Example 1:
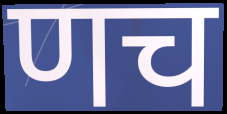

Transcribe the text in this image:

णच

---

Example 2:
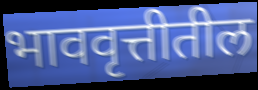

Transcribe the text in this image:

भाववृत्तीतील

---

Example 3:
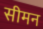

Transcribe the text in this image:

सीमन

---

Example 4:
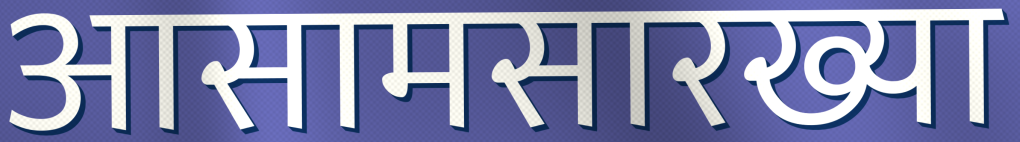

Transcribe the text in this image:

आसामसारख्या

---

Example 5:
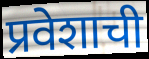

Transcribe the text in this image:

प्रवेशाची